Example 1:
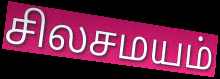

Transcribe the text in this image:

சிலசமயம்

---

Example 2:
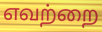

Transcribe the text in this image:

எவற்றை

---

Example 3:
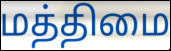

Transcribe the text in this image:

மத்திமை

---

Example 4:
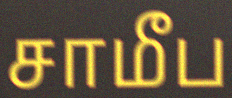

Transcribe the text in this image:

சாமீப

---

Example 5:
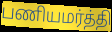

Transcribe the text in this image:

பணியமர்த்தி